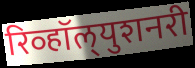
रिव्हॉल्युशनरी